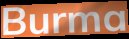
Burma